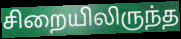
சிறையிலிருந்த